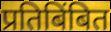
प्रतिबिंबित